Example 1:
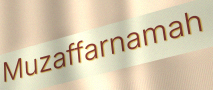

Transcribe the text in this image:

Muzaffarnamah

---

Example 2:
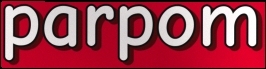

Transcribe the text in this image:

parpom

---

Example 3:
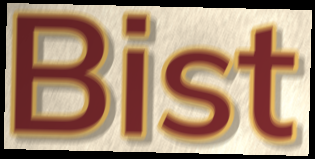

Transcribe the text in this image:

Bist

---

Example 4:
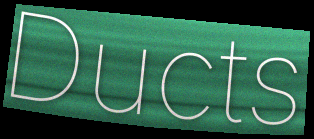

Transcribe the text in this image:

Ducts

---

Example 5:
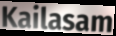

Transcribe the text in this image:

Kailasam